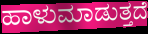
ಹಾಳುಮಾಡುತ್ತದೆ